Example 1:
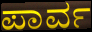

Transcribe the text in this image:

ಪಾರ್ವ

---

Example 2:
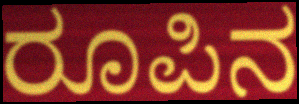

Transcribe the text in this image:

ರೂಪಿನ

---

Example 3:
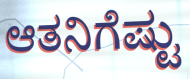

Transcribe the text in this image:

ಆತನಿಗೆಷ್ಟು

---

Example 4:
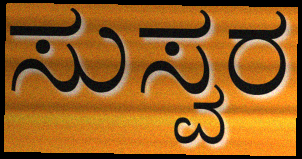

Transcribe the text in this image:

ಸುಸ್ವರ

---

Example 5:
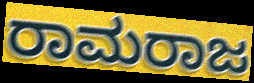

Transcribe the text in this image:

ರಾಮರಾಜ